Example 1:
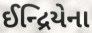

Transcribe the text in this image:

ઈન્દ્રિયેના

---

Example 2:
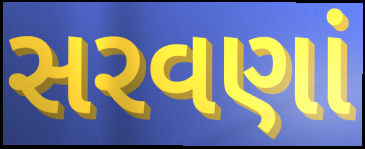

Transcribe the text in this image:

સરવણાં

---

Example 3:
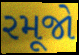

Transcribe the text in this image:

રમૂજો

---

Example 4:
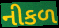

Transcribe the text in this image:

નીકળ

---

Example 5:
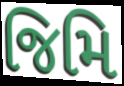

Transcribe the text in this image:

જિમિ